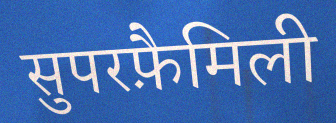
सुपरफ़ैमिली